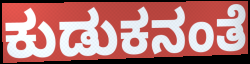
ಕುಡುಕನಂತೆ